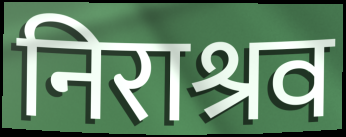
निराश्रव